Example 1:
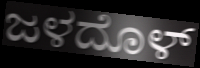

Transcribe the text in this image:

ಜಳದೊಳ್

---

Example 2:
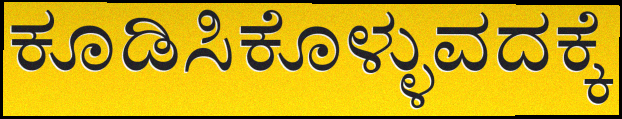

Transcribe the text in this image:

ಕೂಡಿಸಿಕೊಳ್ಳುವದಕ್ಕೆ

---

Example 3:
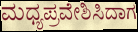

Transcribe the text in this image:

ಮಧ್ಯಪ್ರವೇಶಿಸಿದಾಗ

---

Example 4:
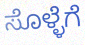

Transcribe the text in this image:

ಸೊಳ್ಳೆಗೆ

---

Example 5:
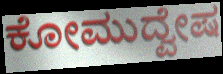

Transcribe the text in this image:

ಕೋಮುದ್ವೇಷ